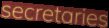
secretaries